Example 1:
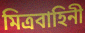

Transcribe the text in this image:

মিত্রবাহিনী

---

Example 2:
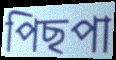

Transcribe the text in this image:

পিছপা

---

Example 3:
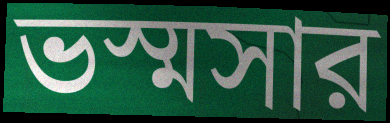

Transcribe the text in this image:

ভস্মসার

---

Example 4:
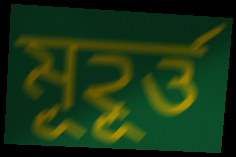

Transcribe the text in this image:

মূহূর্ত্ত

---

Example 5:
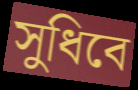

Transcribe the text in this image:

সুধিবে